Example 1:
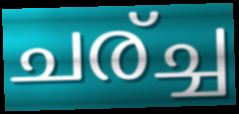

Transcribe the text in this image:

ചര്ച്ച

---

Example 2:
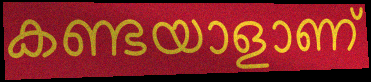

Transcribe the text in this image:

കണ്ടയാളാണ്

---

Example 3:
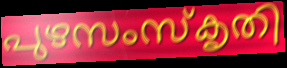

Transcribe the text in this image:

പുഴസംസ്കൃതി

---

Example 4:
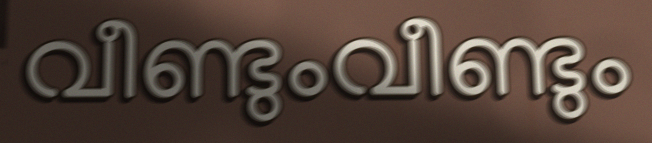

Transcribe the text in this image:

വീണ്ടുംവീണ്ടും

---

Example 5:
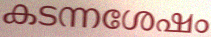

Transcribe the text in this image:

കടന്നശേഷം